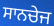
ਸਾਨਚੇਜ